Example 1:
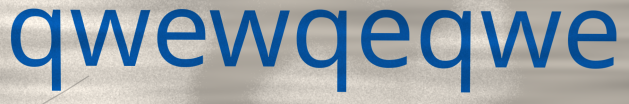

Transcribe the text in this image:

qwewqeqwe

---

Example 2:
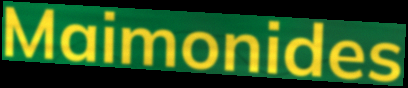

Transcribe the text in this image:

Maimonides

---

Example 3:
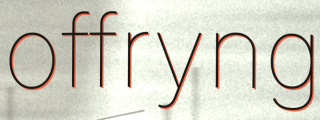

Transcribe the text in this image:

offryng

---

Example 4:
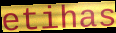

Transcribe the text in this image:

etihas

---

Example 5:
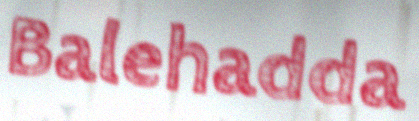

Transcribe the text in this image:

Balehadda